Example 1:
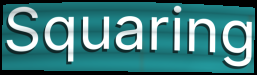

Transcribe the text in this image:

Squaring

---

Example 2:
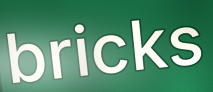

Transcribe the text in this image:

bricks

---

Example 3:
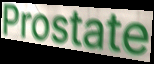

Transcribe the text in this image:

Prostate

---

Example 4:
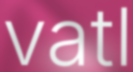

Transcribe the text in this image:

vatl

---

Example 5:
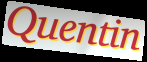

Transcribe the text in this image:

Quentin